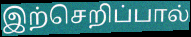
இற்செறிப்பால்